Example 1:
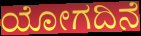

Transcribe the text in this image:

ಯೋಗದಿನೆ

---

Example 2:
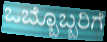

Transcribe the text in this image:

ಒಬ್ಬೊಬ್ಬರಿಗೆ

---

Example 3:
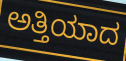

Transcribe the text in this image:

ಅತ್ತಿಯಾದ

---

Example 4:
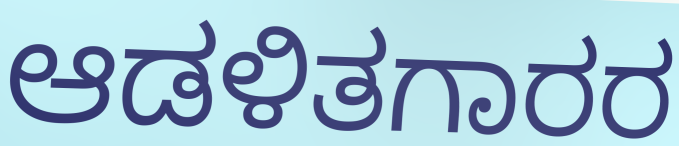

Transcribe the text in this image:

ಆಡಳಿತಗಾರರ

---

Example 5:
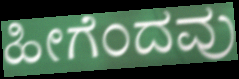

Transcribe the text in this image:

ಹೀಗೆಂದವು